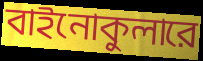
বাইনোকুলারে